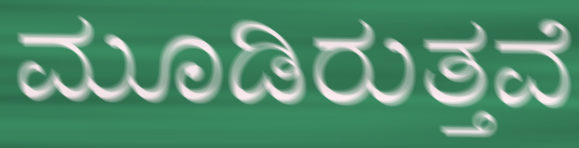
ಮೂಡಿರುತ್ತವೆ